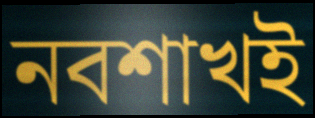
নবশাখই